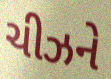
ચીઝને